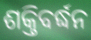
ଶକ୍ତିବର୍ଦ୍ଧନ